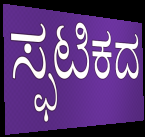
ಸ್ಫಟಿಕದ